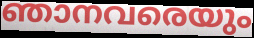
ഞാനവരെയും